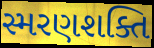
સ્મરણશક્તિ